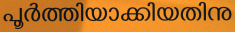
പൂർത്തിയാക്കിയതിനു